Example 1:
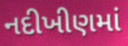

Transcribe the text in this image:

નદીખીણમાં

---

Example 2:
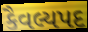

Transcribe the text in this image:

કૈવલ્યપદ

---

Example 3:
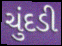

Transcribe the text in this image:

ચુંદડી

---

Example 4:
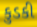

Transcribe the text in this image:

કુડકી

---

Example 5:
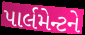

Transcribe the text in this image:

પાર્લમેન્ટને